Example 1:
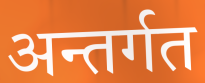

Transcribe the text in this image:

अन्‍तर्गत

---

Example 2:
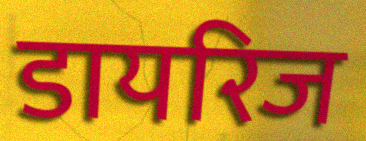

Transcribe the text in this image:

डायरिज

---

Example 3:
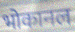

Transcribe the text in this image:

भोकानल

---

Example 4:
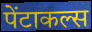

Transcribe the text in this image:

पेंटाकल्स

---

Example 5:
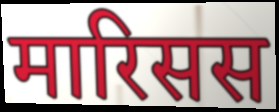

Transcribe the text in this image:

मारिसस